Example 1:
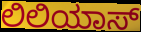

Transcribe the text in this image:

ಲಿಲಿಯಾಸ್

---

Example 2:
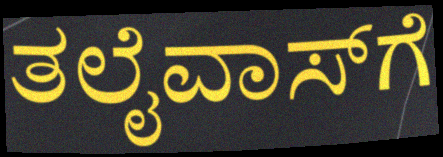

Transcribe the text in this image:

ತಲೈವಾಸ್‌ಗೆ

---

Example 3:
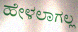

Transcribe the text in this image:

ಹೇಳಲಾಗಲ್ಲ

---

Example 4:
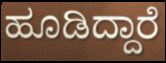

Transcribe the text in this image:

ಹೂಡಿದ್ದಾರೆ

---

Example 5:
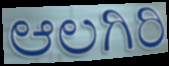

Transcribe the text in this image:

ಆಲಗಿರಿ